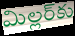
మిల్లర్‌కు